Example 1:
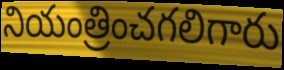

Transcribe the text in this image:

నియంత్రించగలిగారు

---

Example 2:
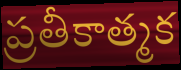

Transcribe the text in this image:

ప్రతీకాత్మక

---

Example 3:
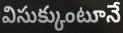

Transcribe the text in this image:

విసుక్కుంటూనే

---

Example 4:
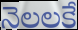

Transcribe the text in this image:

నెలలకే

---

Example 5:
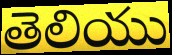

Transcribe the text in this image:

తెలియు